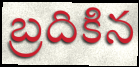
బ్రదికిన